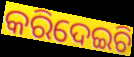
କରିଦେଇଚି